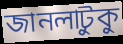
জানলাটুকু